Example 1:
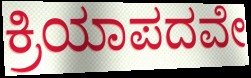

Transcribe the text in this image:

ಕ್ರಿಯಾಪದವೇ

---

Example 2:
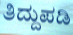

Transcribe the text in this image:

ತಿದ್ದುಪಡಿ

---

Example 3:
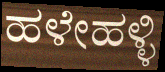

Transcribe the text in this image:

ಹಳೇಹಳ್ಳಿ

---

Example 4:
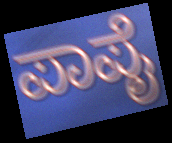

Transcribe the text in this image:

ಪಾಪೈ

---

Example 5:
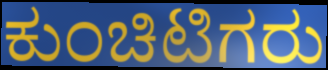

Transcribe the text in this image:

ಕುಂಚಿಟಿಗರು